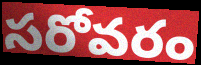
సరోవరం